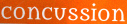
concussion